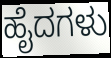
ಹೈದಗಳು